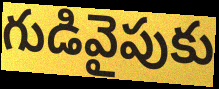
గుడివైపుకు